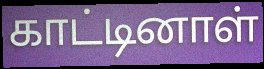
காட்டினாள்